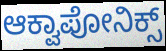
ಆಕ್ವಾಪೋನಿಕ್ಸ್